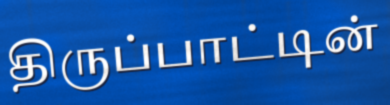
திருப்பாட்டின்